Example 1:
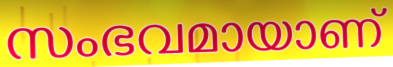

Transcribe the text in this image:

സംഭവമായാണ്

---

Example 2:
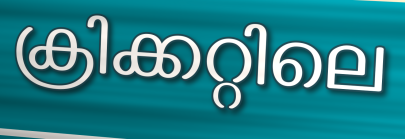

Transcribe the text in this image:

ക്രിക്കറ്റിലെ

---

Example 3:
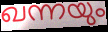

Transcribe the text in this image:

ഖന്നയും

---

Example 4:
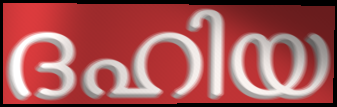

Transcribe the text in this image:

ദഹിയ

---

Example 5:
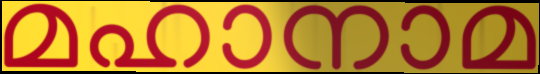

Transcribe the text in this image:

മഹാനാമ